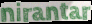
nirantar